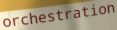
orchestration